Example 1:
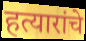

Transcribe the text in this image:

हत्यारांचे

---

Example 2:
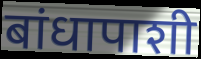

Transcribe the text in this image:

बांधापाशी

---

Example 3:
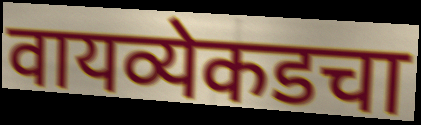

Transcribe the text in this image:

वायव्येकडचा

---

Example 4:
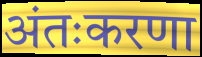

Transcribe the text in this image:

अंतःकरणा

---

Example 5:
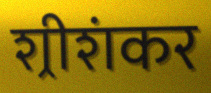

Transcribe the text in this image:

श्रीशंकर